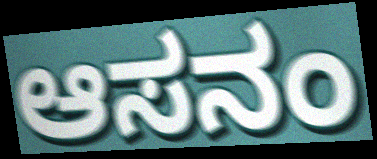
ಆಸನಂ